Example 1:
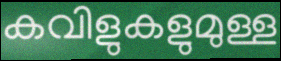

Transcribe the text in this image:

കവിളുകളുമുള്ള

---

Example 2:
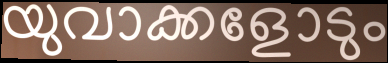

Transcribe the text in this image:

യുവാക്കളോടും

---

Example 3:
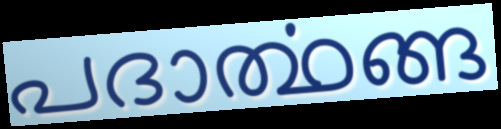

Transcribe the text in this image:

പദാൎത്ഥങ്ങ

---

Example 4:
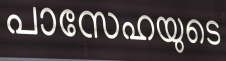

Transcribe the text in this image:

പാസേഹയുടെ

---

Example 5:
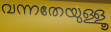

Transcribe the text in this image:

വന്നതേയുള്ളൂ